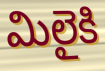
మిలైకి